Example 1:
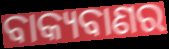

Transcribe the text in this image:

ବାକ୍ୟବାଣର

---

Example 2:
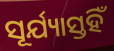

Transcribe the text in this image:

ସୂର୍ଯ୍ୟାସ୍ତହିଁ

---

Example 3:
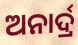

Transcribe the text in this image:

ଅନାର୍ଦ୍ର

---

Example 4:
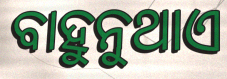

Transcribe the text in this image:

ବାହୁନୁଥାଏ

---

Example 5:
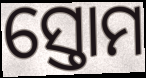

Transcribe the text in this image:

ସ୍ତୋମ